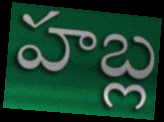
హబ్ల